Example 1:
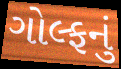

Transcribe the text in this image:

ગોલ્ફનું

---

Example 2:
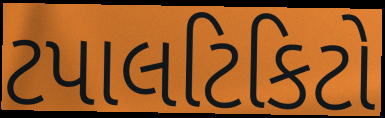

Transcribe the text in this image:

ટપાલટિકિટો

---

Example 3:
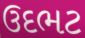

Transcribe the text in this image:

ઉદભટ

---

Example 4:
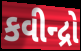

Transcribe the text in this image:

કવીન્દ્રો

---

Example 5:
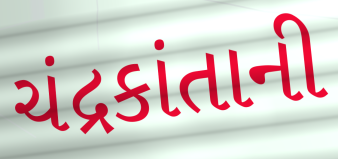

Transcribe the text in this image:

ચંદ્રકાંતાની